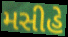
મસીહે